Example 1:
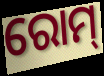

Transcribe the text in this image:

ରୋମ୍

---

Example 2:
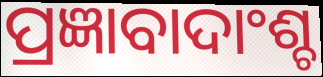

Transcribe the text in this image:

ପ୍ରଜ୍ଞାବାଦାଂଶ୍ଚ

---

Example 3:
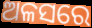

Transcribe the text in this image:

ଅଳସରେ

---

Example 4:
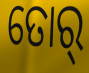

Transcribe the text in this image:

ତୋର୍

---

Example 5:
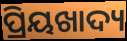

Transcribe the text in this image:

ପ୍ରିୟଖାଦ୍ୟ